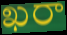
ఖరా